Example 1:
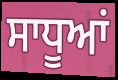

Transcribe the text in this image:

ਸਾਧੂਆਂ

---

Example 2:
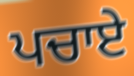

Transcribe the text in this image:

ਪਚਾਏ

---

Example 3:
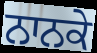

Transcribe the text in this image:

ਨਾਨਕੇ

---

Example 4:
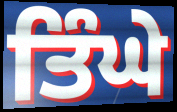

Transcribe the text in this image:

ਤਿੰਘੇ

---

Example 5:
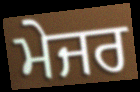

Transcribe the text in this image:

ਮੇਜਰ